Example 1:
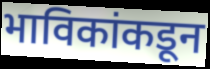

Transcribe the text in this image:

भाविकांकडून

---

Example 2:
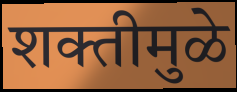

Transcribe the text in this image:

शक्तीमुळे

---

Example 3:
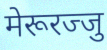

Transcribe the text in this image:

मेरूरज्जु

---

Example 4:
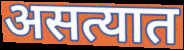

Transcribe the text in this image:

असत्यात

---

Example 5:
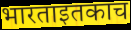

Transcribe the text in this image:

भारताइतकाच